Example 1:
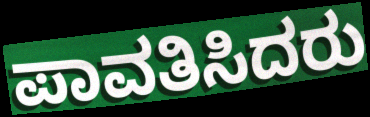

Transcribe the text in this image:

ಪಾವತಿಸಿದರು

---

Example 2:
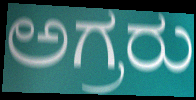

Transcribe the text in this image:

ಅಗ್ರರು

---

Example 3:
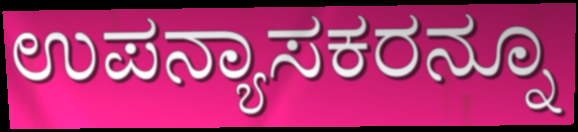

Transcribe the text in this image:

ಉಪನ್ಯಾಸಕರನ್ನೂ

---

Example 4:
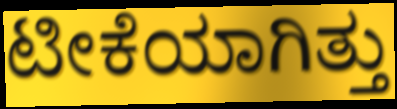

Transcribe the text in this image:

ಟೀಕೆಯಾಗಿತ್ತು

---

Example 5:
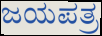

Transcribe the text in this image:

ಜಯಪತ್ರ